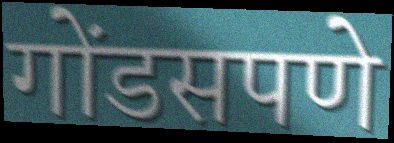
गोंडसपणे